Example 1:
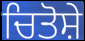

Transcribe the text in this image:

ਚਿਤੋਸ਼ੇ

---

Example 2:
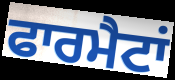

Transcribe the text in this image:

ਫਾਰਮੈਟਾਂ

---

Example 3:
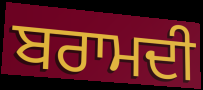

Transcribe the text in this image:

ਬਰਾਮਦੀ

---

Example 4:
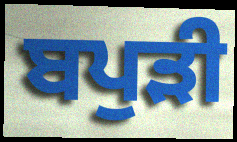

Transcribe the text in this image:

ਬਪੁੜੀ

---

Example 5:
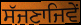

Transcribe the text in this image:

ਸੱਜਣਾਜਿਵੇਂ